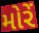
મોરેં